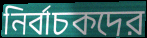
নির্বাচকদের